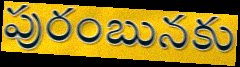
పురంబునకు